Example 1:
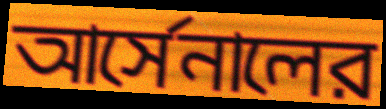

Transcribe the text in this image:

আর্সেনালের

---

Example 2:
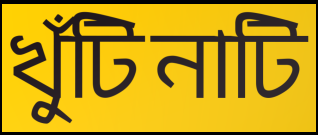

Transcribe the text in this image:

খুঁটিনাটি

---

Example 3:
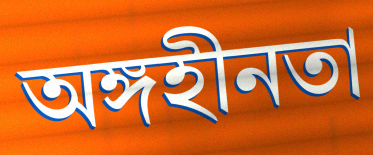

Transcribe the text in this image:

অঙ্গহীনতা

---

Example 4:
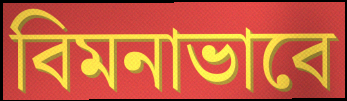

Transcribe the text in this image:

বিমনাভাবে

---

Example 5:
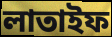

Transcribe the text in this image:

লাতাইফ